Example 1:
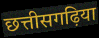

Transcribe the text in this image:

छत्तीसगढ़िया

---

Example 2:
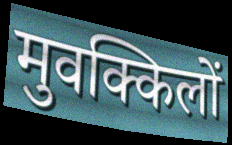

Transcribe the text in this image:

मुवक्किलों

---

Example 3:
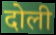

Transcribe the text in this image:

दोली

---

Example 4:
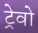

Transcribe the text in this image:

ट्रेवो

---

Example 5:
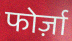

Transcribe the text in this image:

फोर्ज़ा